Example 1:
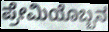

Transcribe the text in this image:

ಪ್ರೇಮಿಯೊಬ್ಬನ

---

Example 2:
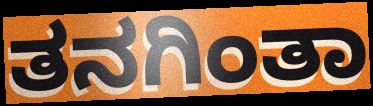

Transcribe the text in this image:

ತನಗಿಂತಾ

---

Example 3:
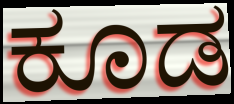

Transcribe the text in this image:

ಕೂಡ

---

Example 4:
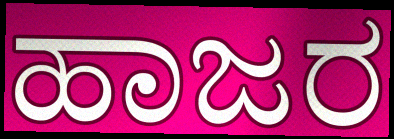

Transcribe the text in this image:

ಹಾಜರ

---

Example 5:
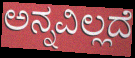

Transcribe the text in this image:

ಅನ್ನವಿಲ್ಲದೆ